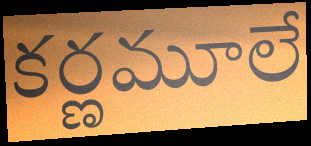
కర్ణమూలే